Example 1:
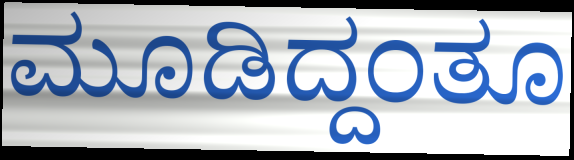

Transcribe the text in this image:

ಮೂಡಿದ್ದಂತೂ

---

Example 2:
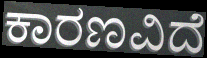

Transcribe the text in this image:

ಕಾರಣವಿದೆ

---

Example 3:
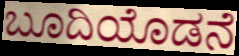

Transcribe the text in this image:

ಬೂದಿಯೊಡನೆ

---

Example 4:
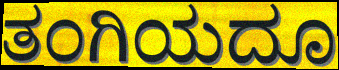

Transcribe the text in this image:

ತಂಗಿಯದೂ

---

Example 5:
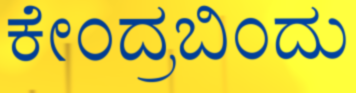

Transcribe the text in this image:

ಕೇಂದ್ರಬಿಂದು